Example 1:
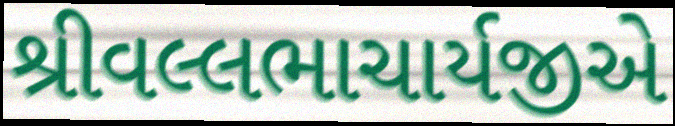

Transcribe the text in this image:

શ્રીવલ્લભાચાર્યજીએ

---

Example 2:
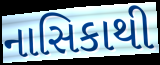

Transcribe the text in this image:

નાસિકાથી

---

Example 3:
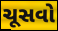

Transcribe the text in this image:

ચૂસવો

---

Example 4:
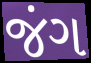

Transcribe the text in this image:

જંગ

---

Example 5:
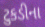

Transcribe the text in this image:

ટુકડીના